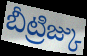
బీట్రిజ్కు